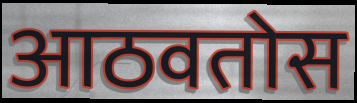
आठवतोस